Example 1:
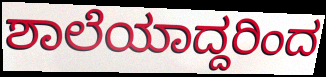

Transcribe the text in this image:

ಶಾಲೆಯಾದ್ದರಿಂದ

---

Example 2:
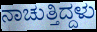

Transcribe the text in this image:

ನಾಚುತ್ತಿದ್ದಳು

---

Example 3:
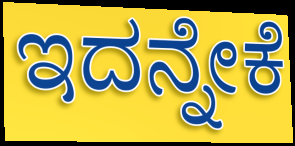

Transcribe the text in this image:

ಇದನ್ನೇಕೆ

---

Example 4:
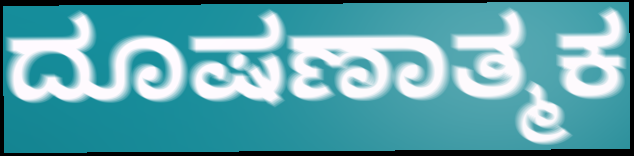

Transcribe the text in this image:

ದೂಷಣಾತ್ಮಕ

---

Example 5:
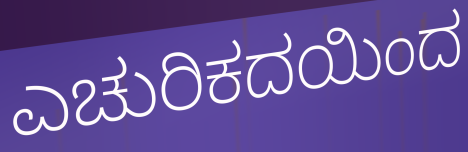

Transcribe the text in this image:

ಎಚುರಿಕದಯಿಂದ